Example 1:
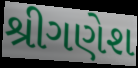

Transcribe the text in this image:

શ્રીગણેશ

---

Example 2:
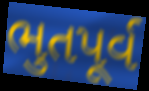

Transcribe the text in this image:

ભુતપૂર્વ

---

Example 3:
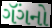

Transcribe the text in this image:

ગૅંગનો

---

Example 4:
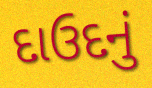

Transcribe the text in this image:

દાઉદનું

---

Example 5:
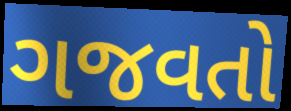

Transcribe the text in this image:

ગજવતો